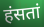
हंसतां